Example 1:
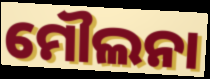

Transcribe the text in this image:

ମୌଲନା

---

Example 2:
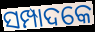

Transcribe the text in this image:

ସମ୍ପାଦକେ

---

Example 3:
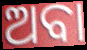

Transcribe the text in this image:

ଅବା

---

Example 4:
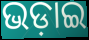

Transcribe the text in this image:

ଭଡ଼ାଇ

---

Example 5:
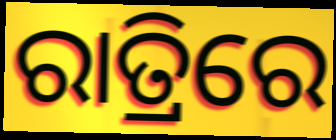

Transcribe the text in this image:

ରାତ୍ରିରେ